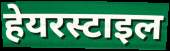
हेयरस्टाइल